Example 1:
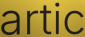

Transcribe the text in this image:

artic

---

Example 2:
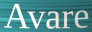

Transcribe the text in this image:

Avare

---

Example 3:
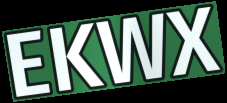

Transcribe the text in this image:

EKWX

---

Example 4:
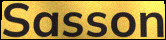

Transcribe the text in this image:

Sasson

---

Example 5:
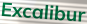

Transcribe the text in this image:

Excalibur